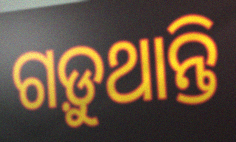
ଗଡ଼ୁଥାନ୍ତି